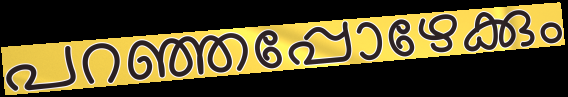
പറഞ്ഞപ്പോഴേക്കും